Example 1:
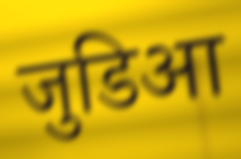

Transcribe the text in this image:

जुडिआ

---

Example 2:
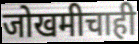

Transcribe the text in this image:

जोखमीचाही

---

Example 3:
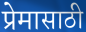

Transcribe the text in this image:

प्रेमासाठी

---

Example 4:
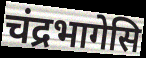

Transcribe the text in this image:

चंद्रभागेसि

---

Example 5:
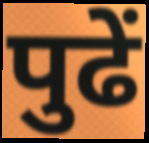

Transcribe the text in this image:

पुढें